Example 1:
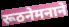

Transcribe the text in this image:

रूठनेमनाने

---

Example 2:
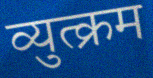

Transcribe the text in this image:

व्युत्क्रम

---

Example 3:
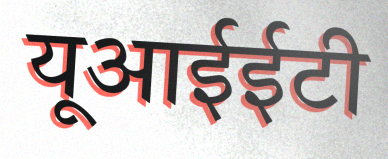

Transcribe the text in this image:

यूआईईटी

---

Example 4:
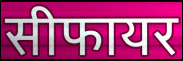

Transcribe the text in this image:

सीफायर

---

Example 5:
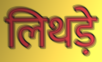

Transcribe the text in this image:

लिथड़े